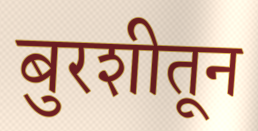
बुरशीतून